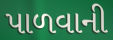
પાળવાની